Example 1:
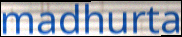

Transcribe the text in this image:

madhurta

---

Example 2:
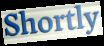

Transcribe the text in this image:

Shortly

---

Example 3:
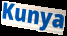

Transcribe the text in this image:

Kunya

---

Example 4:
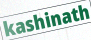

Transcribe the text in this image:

kashinath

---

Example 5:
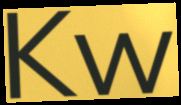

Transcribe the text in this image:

Kw